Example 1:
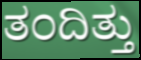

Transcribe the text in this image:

ತಂದಿತ್ತು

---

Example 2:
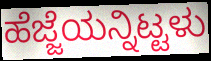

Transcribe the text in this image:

ಹೆಜ್ಜೆಯನ್ನಿಟ್ಟಳು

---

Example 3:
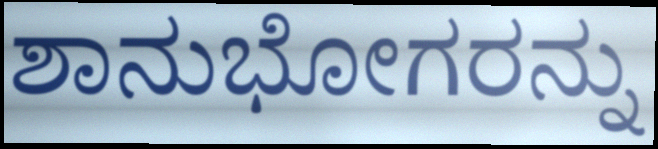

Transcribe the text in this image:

ಶಾನುಭೋಗರನ್ನು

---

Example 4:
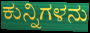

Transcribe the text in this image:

ಕುನ್ನಿಗಳನು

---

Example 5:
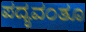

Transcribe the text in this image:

ಪದ್ಯವಂತೂ